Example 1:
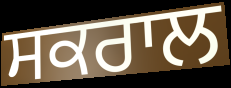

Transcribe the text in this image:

ਸਕਰਾਲ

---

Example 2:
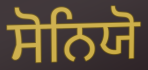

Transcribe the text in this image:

ਸੋਨਿਯੋ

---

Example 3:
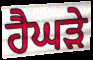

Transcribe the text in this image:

ਹੈਘੜੇ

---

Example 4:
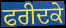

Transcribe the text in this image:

ਫਰੀਦਕੇ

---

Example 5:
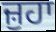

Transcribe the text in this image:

ਜ਼ੁਹਾ